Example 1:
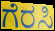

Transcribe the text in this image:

ಗೆರಸಿ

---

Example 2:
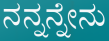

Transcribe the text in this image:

ನನ್ನನ್ನೇನು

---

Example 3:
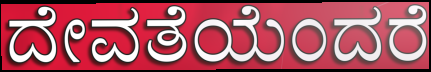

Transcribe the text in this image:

ದೇವತೆಯೆಂದರೆ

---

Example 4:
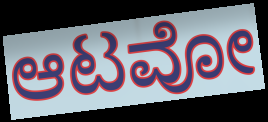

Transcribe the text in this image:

ಆಟವೋ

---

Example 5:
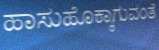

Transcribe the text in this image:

ಹಾಸುಹೊಕ್ಕಾಗುವಂತೆ